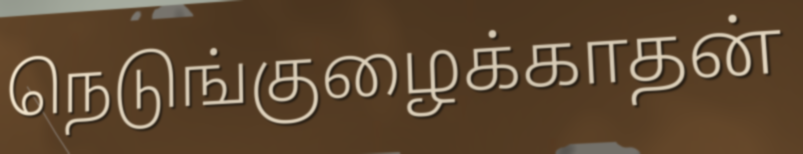
நெடுங்குழைக்காதன்